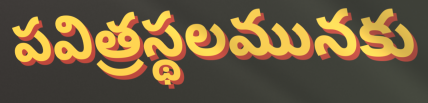
పవిత్రస్థలమునకు